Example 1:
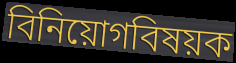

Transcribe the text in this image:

বিনিয়োগবিষয়ক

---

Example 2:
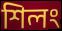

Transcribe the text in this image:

শিলং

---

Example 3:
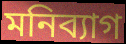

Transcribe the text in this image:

মনিব্যাগ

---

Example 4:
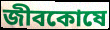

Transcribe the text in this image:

জীবকোষে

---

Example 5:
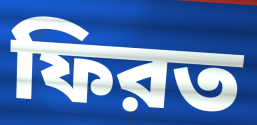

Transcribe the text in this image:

ফিরত